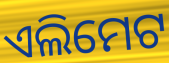
ଏଲିମେଟ